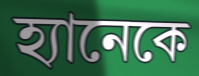
হ্যানেকে